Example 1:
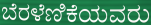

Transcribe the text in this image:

ಬೆರಳೆಣಿಕೆಯವರು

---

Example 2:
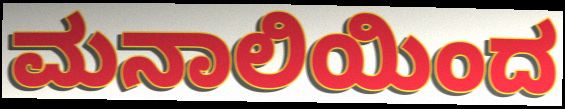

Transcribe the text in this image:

ಮನಾಲಿಯಿಂದ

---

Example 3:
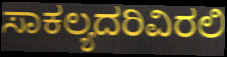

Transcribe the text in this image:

ಸಾಕಲ್ಯದರಿವಿರಲಿ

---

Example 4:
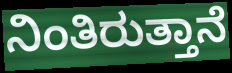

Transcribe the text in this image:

ನಿಂತಿರುತ್ತಾನೆ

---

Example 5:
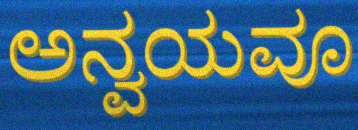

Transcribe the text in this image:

ಅನ್ವಯವೂ